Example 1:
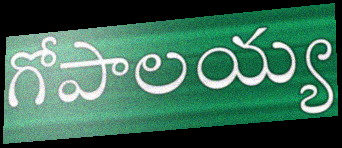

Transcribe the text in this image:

గోపాలయ్య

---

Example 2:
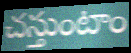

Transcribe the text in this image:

చస్తుంటాం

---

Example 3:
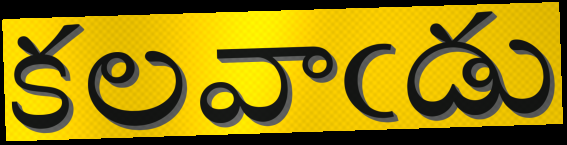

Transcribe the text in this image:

కలవాఁడు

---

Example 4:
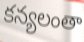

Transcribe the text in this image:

కన్యలంతా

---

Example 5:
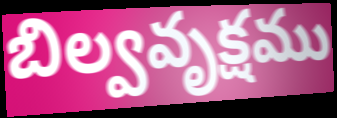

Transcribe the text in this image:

బిల్వవృక్షము